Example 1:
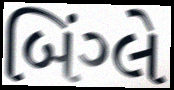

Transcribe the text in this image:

બિંગ્લે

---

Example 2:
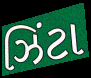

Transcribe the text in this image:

ઝિંટા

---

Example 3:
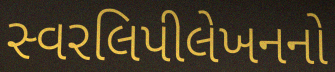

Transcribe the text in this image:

સ્વરલિપીલેખનનો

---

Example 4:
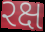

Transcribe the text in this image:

રક્ષ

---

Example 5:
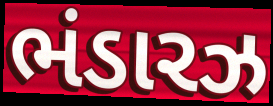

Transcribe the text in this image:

ભંડારઝ